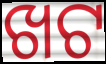
ଖଟ